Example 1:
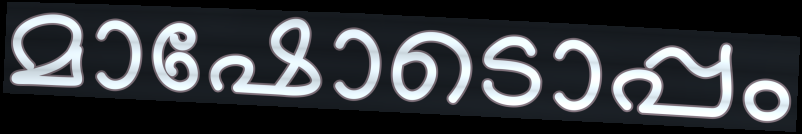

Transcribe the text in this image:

മാഷോടൊപ്പം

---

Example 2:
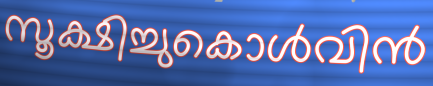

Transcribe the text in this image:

സൂക്ഷിച്ചുകൊൾവിൻ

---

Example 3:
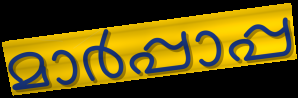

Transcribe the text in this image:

മാർപ്പാപ്പ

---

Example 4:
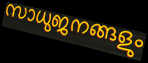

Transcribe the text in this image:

സാധുജനങ്ങളും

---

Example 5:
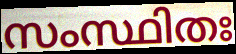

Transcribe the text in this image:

സംസ്ഥിതഃ